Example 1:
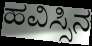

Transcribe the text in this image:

ಹವಿಸ್ಸಿನ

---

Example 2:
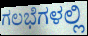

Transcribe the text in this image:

ಗಲಭೆಗಳಲ್ಲಿ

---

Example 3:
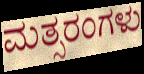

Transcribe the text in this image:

ಮತ್ಸರಂಗಳು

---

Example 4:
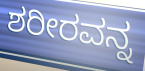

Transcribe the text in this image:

ಶರೀರವನ್ನ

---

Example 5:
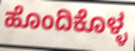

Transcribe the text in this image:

ಹೊಂದಿಕೊಳ್ಳ